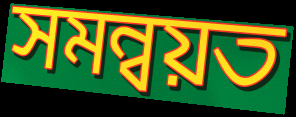
সমন্বয়ত